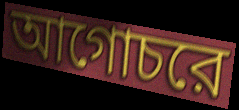
আগোচরে